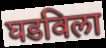
घडविला